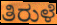
ತಿರುಳೆ